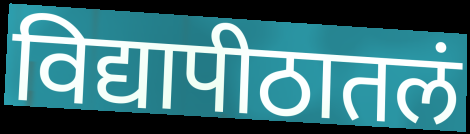
विद्यापीठातलं